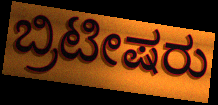
ಬ್ರಿಟೀಷರು